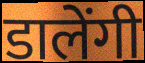
डालेंगी